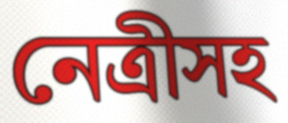
নেত্রীসহ